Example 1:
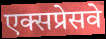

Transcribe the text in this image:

एक्सप्रेसवे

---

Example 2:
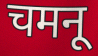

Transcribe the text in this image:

चमनू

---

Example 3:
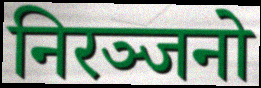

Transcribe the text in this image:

निरञ्जनो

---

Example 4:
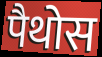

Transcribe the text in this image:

पैथोस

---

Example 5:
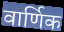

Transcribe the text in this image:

वार्णिक